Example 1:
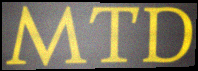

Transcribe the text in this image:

MTD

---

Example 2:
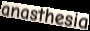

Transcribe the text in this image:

anasthesia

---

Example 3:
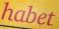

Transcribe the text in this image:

habet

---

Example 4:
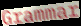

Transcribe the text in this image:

Grammar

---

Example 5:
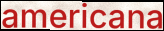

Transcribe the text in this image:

americana